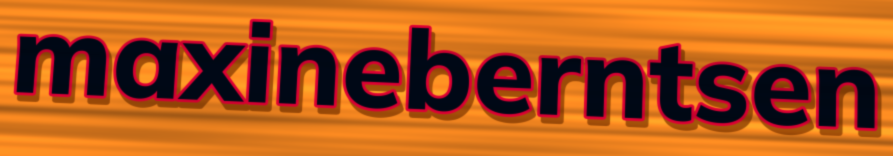
maxineberntsen